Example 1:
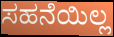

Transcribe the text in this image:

ಸಹನೆಯಿಲ್ಲ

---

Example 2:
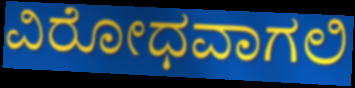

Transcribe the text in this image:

ವಿರೋಧವಾಗಲಿ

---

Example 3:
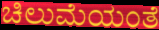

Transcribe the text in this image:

ಚಿಲುಮೆಯಂತೆ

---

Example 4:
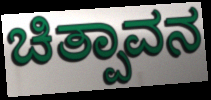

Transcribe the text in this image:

ಚಿತ್ಪಾವನ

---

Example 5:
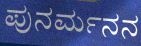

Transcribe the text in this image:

ಪುನರ್ಮನನ